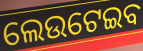
ଲେଉଟେଇବ